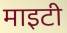
माइटी